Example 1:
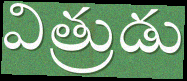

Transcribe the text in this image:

విత్రుడు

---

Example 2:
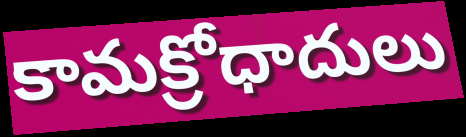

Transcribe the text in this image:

కామక్రోధాదులు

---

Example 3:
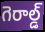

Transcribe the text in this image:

గెరాల్డ్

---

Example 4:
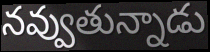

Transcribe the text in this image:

నవ్వుతున్నాడు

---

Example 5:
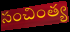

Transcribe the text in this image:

సంచింత్య